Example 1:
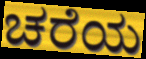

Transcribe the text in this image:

ಚರೆಯ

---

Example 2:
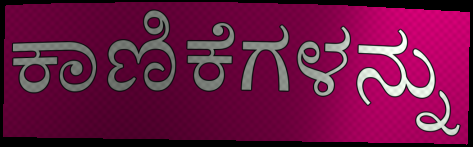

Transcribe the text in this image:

ಕಾಣಿಕೆಗಳನ್ನು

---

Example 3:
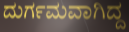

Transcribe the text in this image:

ದುರ್ಗಮವಾಗಿದ್ದ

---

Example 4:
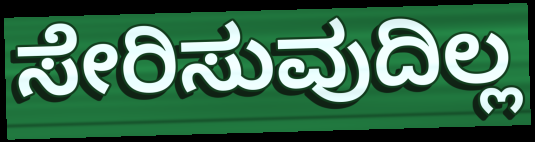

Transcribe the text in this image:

ಸೇರಿಸುವುದಿಲ್ಲ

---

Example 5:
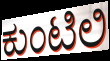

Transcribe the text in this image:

ಕುಂಟಿಲಿ